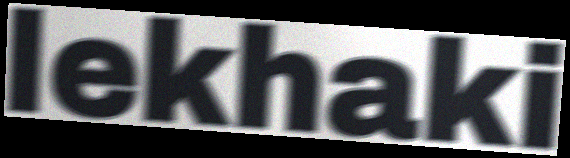
lekhaki